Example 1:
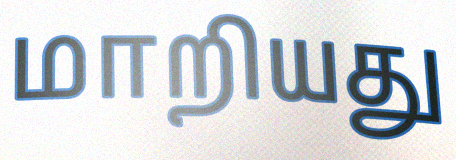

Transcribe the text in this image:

மாறியது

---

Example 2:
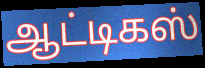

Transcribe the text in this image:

ஆட்டிகஸ்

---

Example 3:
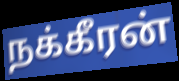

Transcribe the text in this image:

நக்கீரன்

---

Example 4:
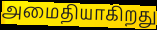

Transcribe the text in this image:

அமைதியாகிறது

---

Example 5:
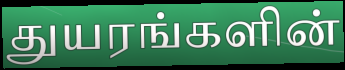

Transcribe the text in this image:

துயரங்களின்